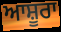
ਆਸ਼ੂਰਾ